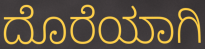
ದೊರೆಯಾಗಿ